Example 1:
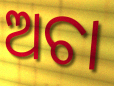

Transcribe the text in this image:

ଅଚା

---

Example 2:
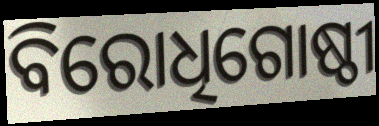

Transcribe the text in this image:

ବିରୋଧିଗୋଷ୍ଠୀ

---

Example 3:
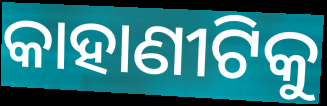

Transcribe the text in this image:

କାହାଣୀଟିକୁ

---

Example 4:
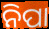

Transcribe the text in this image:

ନିପା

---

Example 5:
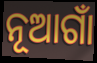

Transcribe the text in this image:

ନୂଆଗାଁ